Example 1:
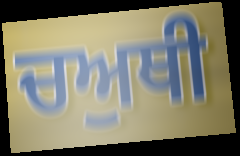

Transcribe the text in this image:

ਚਅੁਥੀ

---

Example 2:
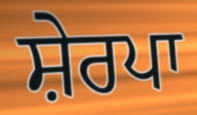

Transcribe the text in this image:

ਸ਼ੇਰਪਾ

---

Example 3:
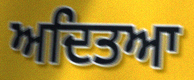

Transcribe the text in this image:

ਅਦਿਤਆ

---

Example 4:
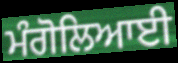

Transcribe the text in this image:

ਮੰਗੋਲਿਆਈ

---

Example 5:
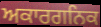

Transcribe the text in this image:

ਅਕਾਰਗਨਿਕ